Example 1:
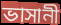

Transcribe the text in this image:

ভাসানী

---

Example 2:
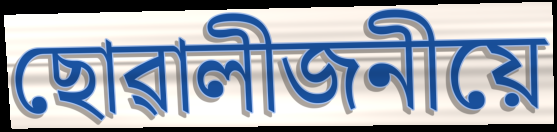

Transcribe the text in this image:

ছোৱালীজনীয়ে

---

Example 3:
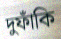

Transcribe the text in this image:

দুফাঁকি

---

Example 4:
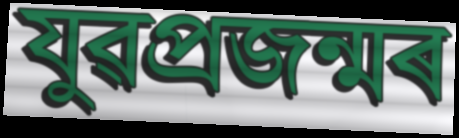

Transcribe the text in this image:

যুৱপ্ৰজন্মৰ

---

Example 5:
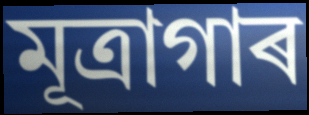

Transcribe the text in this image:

মূত্ৰাগাৰ